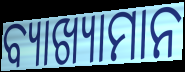
ବ୍ୟାଖ୍ୟାମାନ